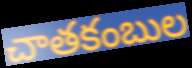
చాతకంబుల